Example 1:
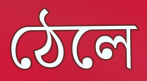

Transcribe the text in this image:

ঠেলে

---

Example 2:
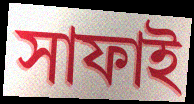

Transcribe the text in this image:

সাফাই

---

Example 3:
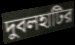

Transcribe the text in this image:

দুবলহাটির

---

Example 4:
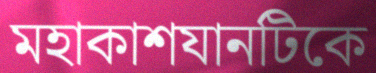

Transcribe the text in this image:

মহাকাশযানটিকে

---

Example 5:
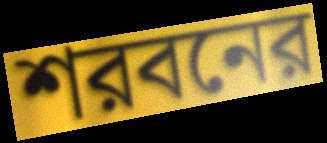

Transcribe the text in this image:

শরবনের